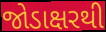
જોડાક્ષરથી